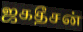
ஜகதீசன்